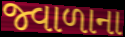
જ્વાળાના